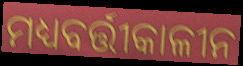
ମଧ୍ୟବର୍ତ୍ତୀକାଳୀନ